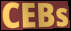
CEBs